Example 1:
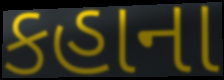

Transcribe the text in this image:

કહાના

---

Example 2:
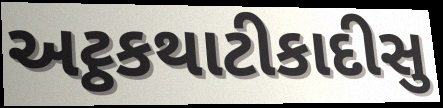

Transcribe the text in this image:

અટ્ઠકથાટીકાદીસુ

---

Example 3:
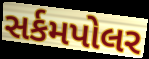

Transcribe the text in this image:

સર્કમપોલર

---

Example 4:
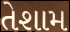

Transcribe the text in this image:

તેશામ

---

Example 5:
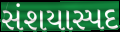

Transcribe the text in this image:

સંશયાસ્પદ